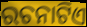
ରଚନାଟିଏ